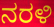
ನರಳಿ